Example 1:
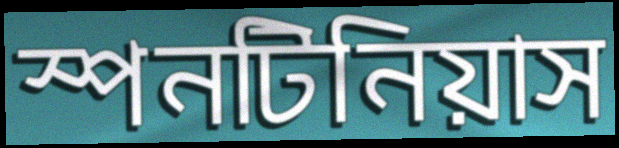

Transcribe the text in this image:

স্পনটিনিয়াস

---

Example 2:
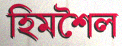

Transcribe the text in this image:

হিমশৈল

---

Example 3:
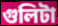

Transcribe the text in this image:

গুলিটা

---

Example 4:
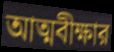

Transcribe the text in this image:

আত্মবীক্ষার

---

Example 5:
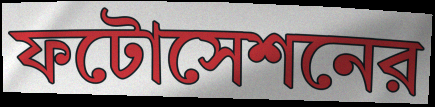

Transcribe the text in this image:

ফটোসেশনের